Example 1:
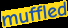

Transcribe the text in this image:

muffled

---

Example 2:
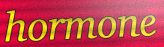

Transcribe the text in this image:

hormone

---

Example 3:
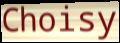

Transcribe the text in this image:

Choisy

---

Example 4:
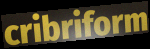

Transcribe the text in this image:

cribriform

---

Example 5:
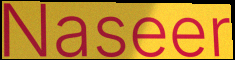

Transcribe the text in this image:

Naseer